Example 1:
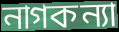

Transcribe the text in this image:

নাগকন্যা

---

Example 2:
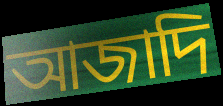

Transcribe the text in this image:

আজাদি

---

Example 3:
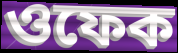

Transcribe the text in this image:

ওফেক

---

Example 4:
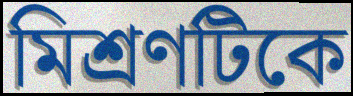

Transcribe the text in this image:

মিশ্রণটিকে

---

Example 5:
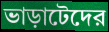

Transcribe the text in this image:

ভাড়াটেদের